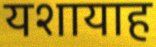
यशायाह